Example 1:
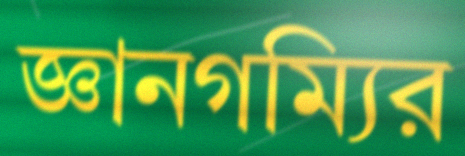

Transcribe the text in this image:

জ্ঞানগম্যির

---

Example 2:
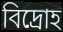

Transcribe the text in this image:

বিদ্রোহ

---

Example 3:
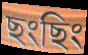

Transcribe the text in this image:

ছংছিং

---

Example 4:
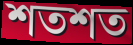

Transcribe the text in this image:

শতশত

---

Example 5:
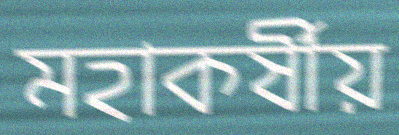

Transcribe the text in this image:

মহাকর্ষীয়